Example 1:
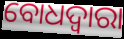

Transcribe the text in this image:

ବୋଧଦ୍ଵାରା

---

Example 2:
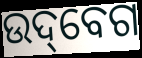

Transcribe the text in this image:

ଉଦ୍‌ବେଗ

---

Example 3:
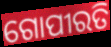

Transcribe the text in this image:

ଗୋପୀରତି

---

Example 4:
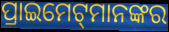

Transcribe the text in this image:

ପ୍ରାଇମେଟ୍‌ମାନଙ୍କର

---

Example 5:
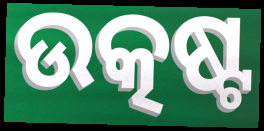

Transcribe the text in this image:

ଉତ୍କଷ୍ଟ